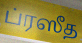
ப்ரஸீத